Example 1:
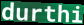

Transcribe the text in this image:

durthi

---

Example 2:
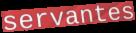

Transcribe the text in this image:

servantes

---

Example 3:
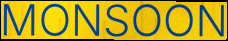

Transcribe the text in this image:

MONSOON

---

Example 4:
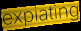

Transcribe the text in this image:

expiating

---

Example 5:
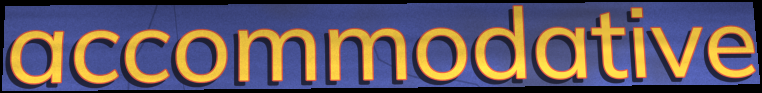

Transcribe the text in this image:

accommodative